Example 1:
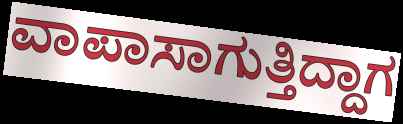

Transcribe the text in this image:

ವಾಪಾಸಾಗುತ್ತಿದ್ದಾಗ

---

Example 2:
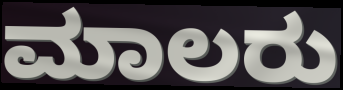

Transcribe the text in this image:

ಮಾಲರು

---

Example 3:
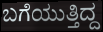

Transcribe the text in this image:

ಬಗೆಯುತ್ತಿದ್ದ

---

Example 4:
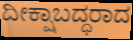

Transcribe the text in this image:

ದೀಕ್ಷಾಬದ್ಧರಾದ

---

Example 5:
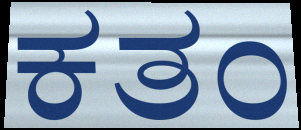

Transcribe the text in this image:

ಕತಂ